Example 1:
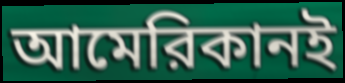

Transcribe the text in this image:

আমেরিকানই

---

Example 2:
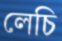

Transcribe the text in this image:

লেচি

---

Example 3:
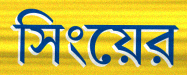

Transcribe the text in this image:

সিংয়ের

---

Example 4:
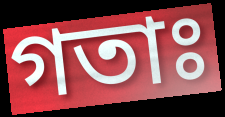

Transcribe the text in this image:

গতাঃ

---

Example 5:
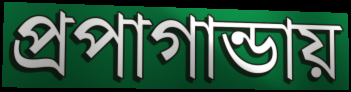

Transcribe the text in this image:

প্রপাগান্ডায়